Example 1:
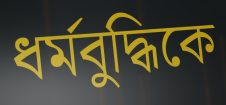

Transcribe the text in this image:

ধর্মবুদ্ধিকে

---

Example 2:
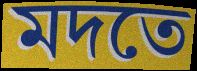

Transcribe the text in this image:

মদতে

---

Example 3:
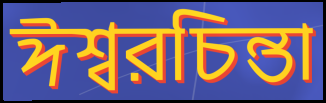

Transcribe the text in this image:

ঈশ্বরচিন্তা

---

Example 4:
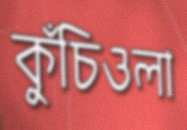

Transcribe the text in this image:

কুঁচিওলা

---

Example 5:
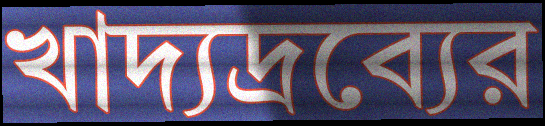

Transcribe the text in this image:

খাদ্যদ্রব্যের